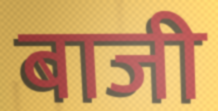
बाजी